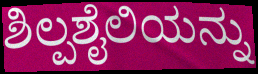
ಶಿಲ್ಪಶೈಲಿಯನ್ನು